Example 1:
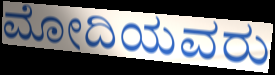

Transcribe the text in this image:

ಮೋದಿಯವರು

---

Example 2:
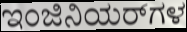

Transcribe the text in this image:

ಇಂಜಿನಿಯರ್‌ಗಳ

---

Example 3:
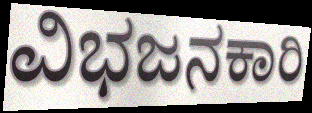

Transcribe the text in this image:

ವಿಭಜನಕಾರಿ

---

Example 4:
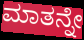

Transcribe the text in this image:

ಮಾತನ್ನೇ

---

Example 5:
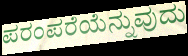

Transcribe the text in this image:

ಪರಂಪರೆಯೆನ್ನುವುದು